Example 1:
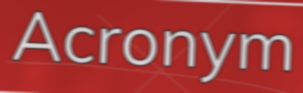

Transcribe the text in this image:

Acronym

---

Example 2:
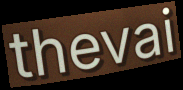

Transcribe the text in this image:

thevai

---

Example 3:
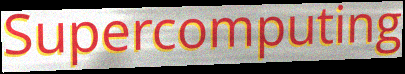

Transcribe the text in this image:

Supercomputing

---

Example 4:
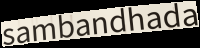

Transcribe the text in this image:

sambandhada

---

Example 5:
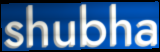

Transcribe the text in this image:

shubha